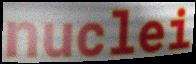
nuclei